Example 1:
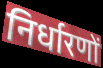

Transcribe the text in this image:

निर्धारणों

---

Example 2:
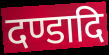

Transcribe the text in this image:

दण्डादि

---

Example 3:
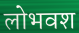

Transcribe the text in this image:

लोभवश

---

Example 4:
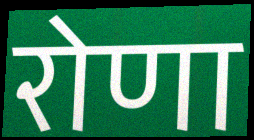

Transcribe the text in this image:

रोणा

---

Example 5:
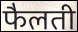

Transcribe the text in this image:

फैलती